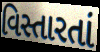
વિસ્તારતાં